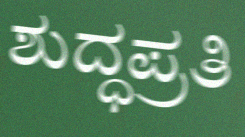
ಶುದ್ಧಪ್ರತಿ